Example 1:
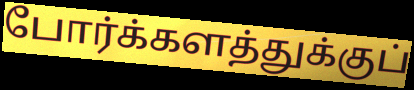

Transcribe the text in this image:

போர்க்களத்துக்குப்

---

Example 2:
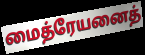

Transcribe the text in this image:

மைத்ரேயனைத்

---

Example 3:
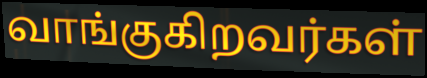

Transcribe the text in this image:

வாங்குகிறவர்கள்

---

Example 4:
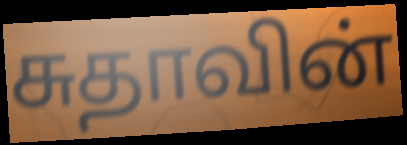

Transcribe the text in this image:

சுதாவின்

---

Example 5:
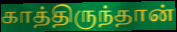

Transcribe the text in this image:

காத்திருந்தான்